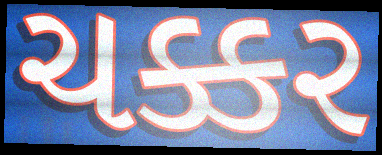
ચક્કર